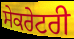
ਸੇਕਰੇਟਰੀ